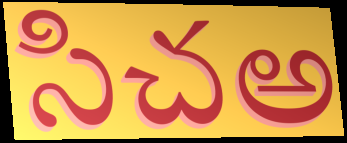
సిచఅ